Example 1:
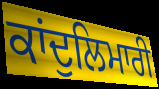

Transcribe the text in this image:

ਕਾਂਦੁਲਿਮਾਰੀ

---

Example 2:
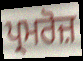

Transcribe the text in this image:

ਪ੍ਰਮਰੋਜ਼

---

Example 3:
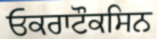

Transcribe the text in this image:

ਓਕਰਾਟੌਕਸਿਨ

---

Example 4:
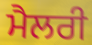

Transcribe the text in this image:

ਮੈਲਰੀ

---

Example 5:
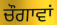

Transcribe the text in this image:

ਚੌਗਾਵਾਂ